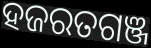
ହଜରତଗଞ୍ଜ